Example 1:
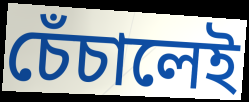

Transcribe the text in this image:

চেঁচালেই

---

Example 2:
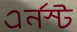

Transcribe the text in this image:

এর্নস্ট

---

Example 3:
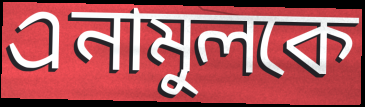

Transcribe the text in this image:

এনামুলকে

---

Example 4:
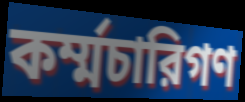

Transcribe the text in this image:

কর্ম্মচারিগণ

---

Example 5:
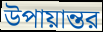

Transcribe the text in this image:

উপায়ান্তর